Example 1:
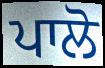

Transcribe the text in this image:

ਪਾਲੋ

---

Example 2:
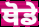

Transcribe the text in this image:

ਥੋਡੇ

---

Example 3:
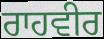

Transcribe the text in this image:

ਰਾਹਵੀਰ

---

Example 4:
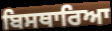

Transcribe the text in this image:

ਬਿਸਥਾਰਿਆ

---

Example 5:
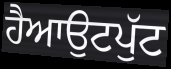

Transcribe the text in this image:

ਹੈਆਉਟਪੁੱਟ